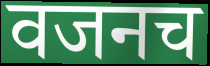
वजनच